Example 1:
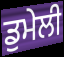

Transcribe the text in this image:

ਡੁਮੇਲੀ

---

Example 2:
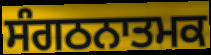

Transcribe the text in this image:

ਸੰਗਠਨਾਤਮਕ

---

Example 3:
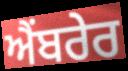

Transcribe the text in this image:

ਐਂਬਰੇਰ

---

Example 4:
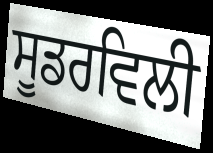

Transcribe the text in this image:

ਸੂਡਰਵਿਲੀ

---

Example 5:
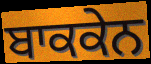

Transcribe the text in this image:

ਬਾਕਕੇਨ